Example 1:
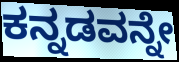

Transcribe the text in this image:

ಕನ್ನಡವನ್ನೇ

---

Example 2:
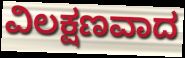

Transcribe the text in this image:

ವಿಲಕ್ಷಣವಾದ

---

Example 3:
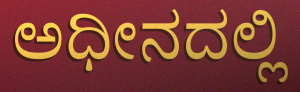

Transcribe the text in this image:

ಅಧೀನದಲ್ಲಿ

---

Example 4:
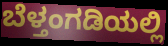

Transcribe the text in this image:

ಬೆಳ್ತಂಗಡಿಯಲ್ಲಿ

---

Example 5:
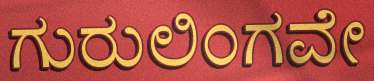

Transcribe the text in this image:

ಗುರುಲಿಂಗವೇ